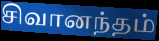
சிவானந்தம்